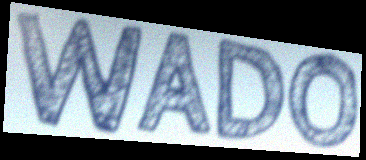
WADO